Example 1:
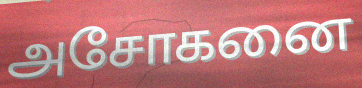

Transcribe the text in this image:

அசோகனை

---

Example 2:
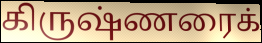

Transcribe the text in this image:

கிருஷ்ணரைக்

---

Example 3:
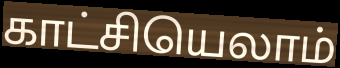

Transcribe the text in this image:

காட்சியெலாம்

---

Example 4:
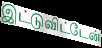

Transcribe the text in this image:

இட்டுவிட்டேன்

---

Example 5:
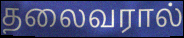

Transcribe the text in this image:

தலைவரால்